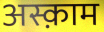
अस्क़ाम